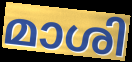
മാശി